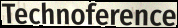
Technoference